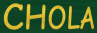
CHOLA